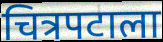
चित्रपटाला